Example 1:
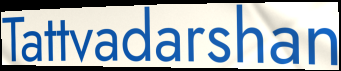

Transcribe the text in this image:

Tattvadarshan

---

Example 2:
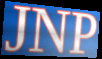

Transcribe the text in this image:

JNP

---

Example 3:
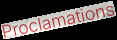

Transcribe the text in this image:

Proclamations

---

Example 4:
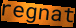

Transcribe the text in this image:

regnat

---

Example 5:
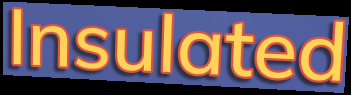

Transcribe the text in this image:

Insulated